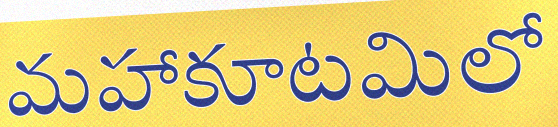
మహాకూటమిలో